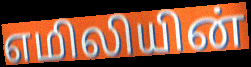
எமிலியின்